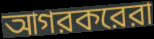
আগরকরেরা